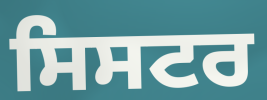
ਸਿਸਟਰ